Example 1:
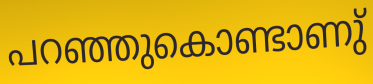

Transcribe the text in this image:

പറഞ്ഞുകൊണ്ടാണു്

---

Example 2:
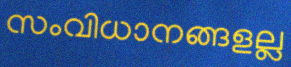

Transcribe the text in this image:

സംവിധാനങ്ങളല്ല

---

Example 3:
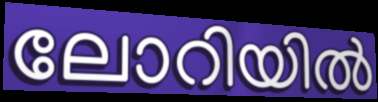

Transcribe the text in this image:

ലോറിയിൽ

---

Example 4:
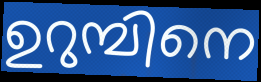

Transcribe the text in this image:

ഉറുമ്പിനെ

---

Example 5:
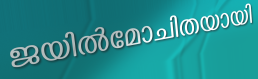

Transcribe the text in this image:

ജയിൽമോചിതയായി